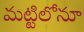
మట్టిలోనూ